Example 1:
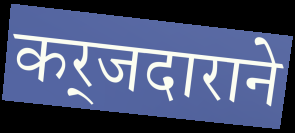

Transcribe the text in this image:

कर्जदाराने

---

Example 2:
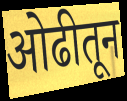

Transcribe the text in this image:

ओढीतून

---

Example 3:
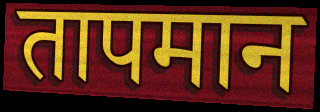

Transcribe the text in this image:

तापमान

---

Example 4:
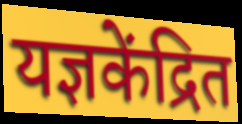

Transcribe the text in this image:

यज्ञकेंद्रित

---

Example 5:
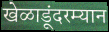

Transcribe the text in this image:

खेळाडूंदरम्यान